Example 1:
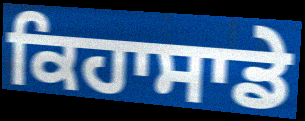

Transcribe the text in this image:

ਕਿਹਾਸਾਡੇ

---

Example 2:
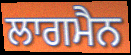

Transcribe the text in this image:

ਲਾਗਮੈਨ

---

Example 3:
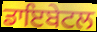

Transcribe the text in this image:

ਡਾਇਬੇਟਲ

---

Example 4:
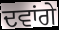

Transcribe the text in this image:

ਦਵਾਂਗੇ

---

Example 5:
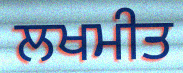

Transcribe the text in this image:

ਲਖਮੀਤ